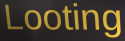
Looting